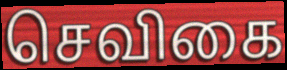
செவிகை